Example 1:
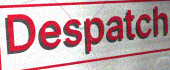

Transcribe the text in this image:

Despatch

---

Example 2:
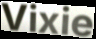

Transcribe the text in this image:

Vixie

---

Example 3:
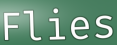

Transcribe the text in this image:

Flies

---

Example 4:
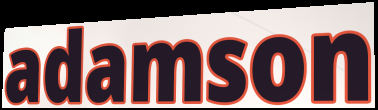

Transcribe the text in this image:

adamson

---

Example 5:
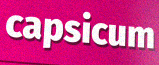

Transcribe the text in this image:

capsicum